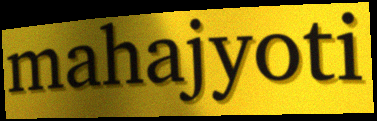
mahajyoti